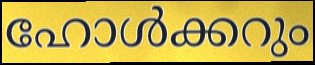
ഹോൾക്കറും